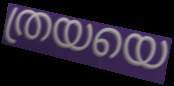
ത്രയയെ